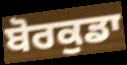
ਬੋਰਕੁਡਾ